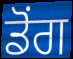
ਡੋਂਗ